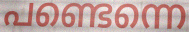
പണ്ടെന്നെ